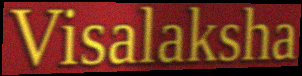
Visalaksha